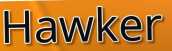
Hawker